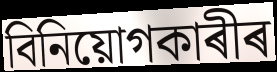
বিনিয়োগকাৰীৰ